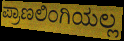
ಪ್ರಾಣಲಿಂಗಿಯಲ್ಲ